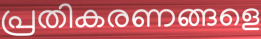
പ്രതികരണങ്ങളെ